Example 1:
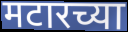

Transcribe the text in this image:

मटारच्या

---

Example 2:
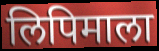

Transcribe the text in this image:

लिपिमाला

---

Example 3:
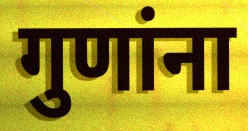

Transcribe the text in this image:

गुणांना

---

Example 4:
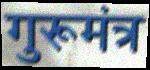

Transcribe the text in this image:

गुरूमंत्र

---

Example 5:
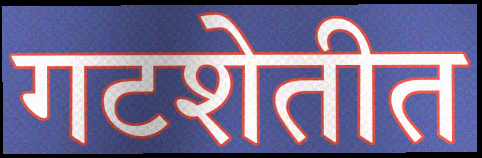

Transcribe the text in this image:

गटशेतीत